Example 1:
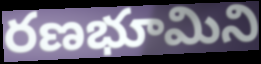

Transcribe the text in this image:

రణభూమిని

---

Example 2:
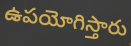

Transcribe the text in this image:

ఉపయోగిస్తారు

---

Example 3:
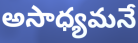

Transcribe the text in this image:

అసాధ్యమనే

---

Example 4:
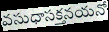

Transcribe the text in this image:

వసుధాసక్తనయనో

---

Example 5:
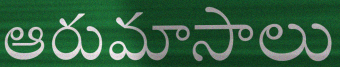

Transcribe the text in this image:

ఆరుమాసాలు